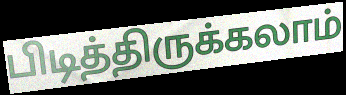
பிடித்திருக்கலாம்